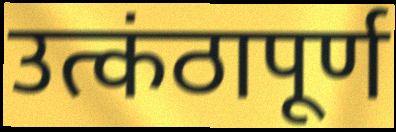
उत्कंठापूर्ण